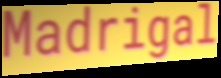
Madrigal